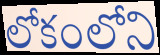
లోకంలోని